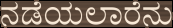
ನಡೆಯಲಾರೆನು